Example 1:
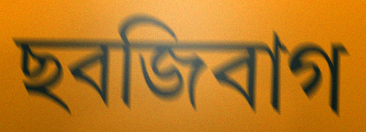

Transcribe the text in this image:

ছবজিবাগ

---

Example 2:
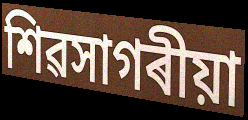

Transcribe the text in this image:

শিৱসাগৰীয়া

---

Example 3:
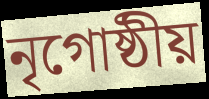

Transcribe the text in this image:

নৃগোষ্ঠীয়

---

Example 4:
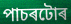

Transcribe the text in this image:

পাচৰটোৰ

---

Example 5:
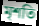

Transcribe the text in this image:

মৃশতি